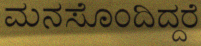
ಮನಸೊಂದಿದ್ದರೆ